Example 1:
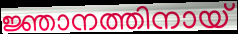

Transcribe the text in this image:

ജ്ഞാനത്തിനായ്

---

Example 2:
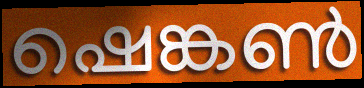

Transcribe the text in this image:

ഷെങ്കൺ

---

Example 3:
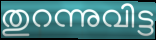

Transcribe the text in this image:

തുറന്നുവിട്ട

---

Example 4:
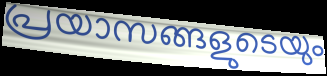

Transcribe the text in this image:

പ്രയാസങ്ങളുടെയും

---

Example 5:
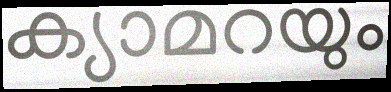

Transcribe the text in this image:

ക്യാമറയും